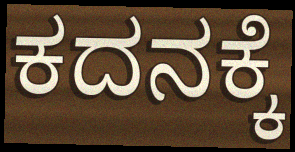
ಕದನಕ್ಕೆ